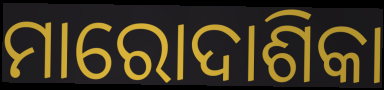
ମାରୋଦାଶିକା